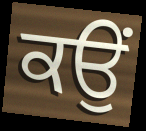
ਕਉਂ